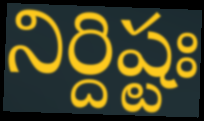
నిర్దిష్టః